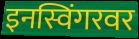
इनस्विंगरवर